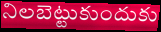
నిలబెట్టుకుందుకు